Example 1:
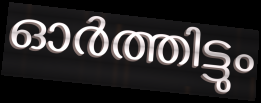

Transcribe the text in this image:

ഓർത്തിട്ടും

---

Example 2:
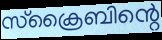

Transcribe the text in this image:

സ്ക്രൈബിന്റെ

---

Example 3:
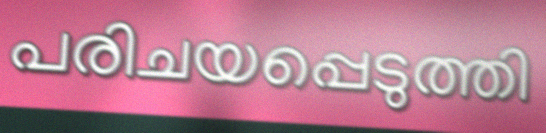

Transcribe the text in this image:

പരിചയപ്പെടുത്തി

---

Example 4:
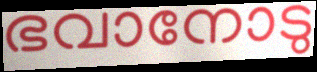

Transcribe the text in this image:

ഭവാനോടു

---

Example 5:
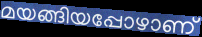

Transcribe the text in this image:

മയങ്ങിയപ്പോഴാണ്